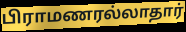
பிராமணரல்லாதார்